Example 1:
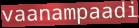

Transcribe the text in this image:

vaanampaadi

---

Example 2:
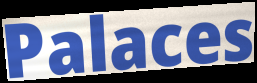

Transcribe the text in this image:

Palaces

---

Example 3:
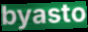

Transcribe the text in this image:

byasto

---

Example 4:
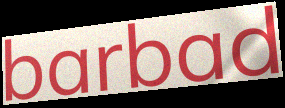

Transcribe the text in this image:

barbad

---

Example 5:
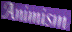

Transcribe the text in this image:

Animism